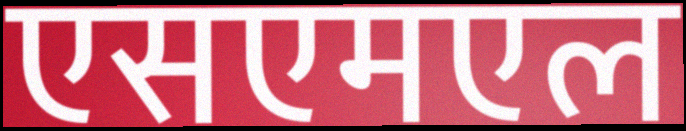
एसएमएल